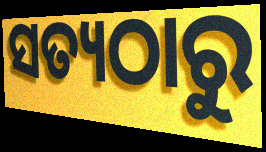
ସତ୍ୟଠାରୁ